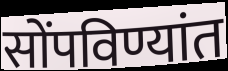
सोंपविण्यांत